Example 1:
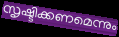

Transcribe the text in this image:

സൃഷ്ടിക്കണമെന്നും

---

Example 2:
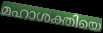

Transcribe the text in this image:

മഹാശക്തിയെ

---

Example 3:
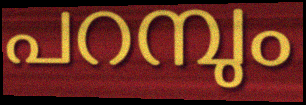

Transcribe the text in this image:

പറമ്പും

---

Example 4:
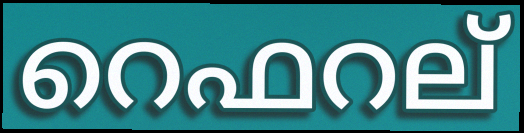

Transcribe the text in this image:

റെഫറല്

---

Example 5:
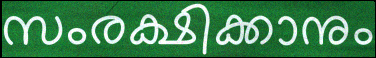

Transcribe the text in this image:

സംരക്ഷിക്കാനും